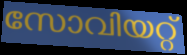
സോവിയറ്റ്